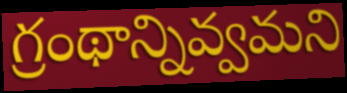
గ్రంథాన్నివ్వమని